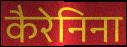
कैरेनिना